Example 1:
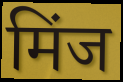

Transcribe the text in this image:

मिंज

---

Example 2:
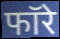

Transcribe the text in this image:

फॉरे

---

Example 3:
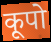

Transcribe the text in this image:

कूपो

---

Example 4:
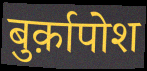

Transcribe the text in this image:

बुर्क़ापोश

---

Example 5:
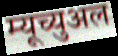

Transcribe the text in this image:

म्यूच्युअल